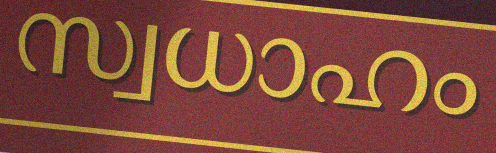
സ്വധാഹം